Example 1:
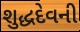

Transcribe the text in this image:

શુદ્ધદેવની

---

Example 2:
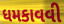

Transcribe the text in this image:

ધમકાવવી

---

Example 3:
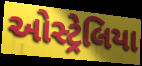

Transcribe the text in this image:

ઓસ્ટ્રેલિયા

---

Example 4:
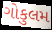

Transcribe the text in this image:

ગોકુલમ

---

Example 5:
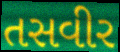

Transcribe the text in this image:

તસવીર